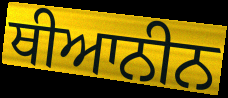
ਥੀਆਨੀਨ